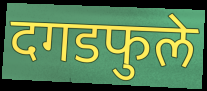
दगडफुले